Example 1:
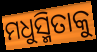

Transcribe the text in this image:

ମଧୁସ୍ମିତାକୁ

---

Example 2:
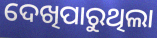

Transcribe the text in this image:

ଦେଖିପାରୁଥିଲା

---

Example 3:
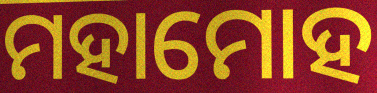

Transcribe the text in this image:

ମହାମୋହ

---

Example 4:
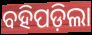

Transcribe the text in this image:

ବହିପଡ଼ିଲା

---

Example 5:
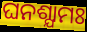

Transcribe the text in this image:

ଘନଶ୍ଯାମଃ